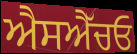
ਐਸਐੱਚਓ